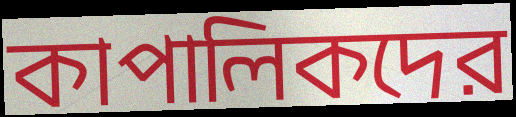
কাপালিকদের